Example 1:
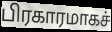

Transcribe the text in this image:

பிரகாரமாகச்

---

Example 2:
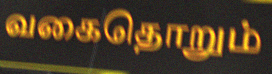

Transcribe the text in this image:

வகைதொறும்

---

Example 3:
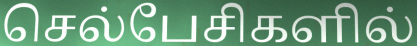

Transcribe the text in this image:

செல்பேசிகளில்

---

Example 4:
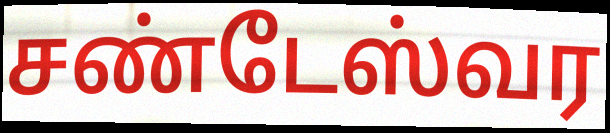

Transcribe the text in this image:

சண்டேஸ்வர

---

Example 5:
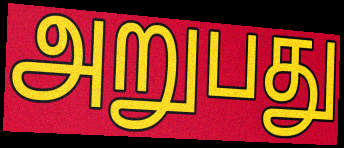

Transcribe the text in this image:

அறுபது